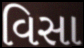
વિસા